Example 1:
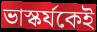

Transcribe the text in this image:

ভাস্কর্যকেই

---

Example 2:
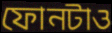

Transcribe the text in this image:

ফোনটাও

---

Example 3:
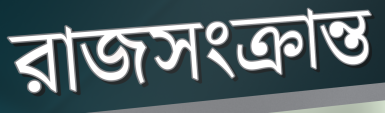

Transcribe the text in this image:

রাজসংক্রান্ত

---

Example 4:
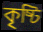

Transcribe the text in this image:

কৃষ্টি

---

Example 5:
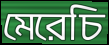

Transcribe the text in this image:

মেরেচি